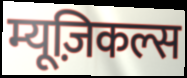
म्यूज़िकल्स